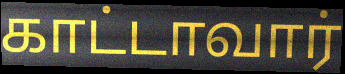
காட்டாவார்